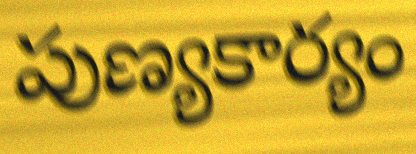
పుణ్యకార్యం